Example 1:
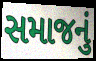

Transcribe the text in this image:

સમાજનું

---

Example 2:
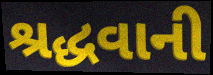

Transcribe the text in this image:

શ્રદ્ધવાની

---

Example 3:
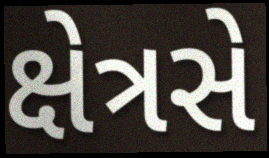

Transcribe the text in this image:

ક્ષેત્રસે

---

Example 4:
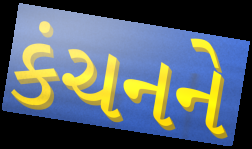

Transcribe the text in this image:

કંચનને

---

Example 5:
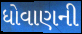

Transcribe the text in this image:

ધોવાણની